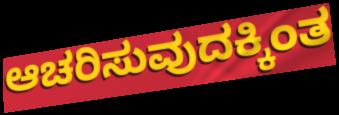
ಆಚರಿಸುವುದಕ್ಕಿಂತ